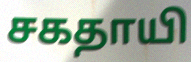
சகதாயி